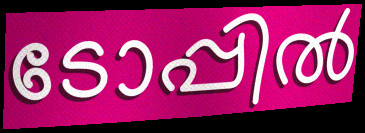
ടോപ്പിൽ